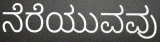
ನೆರೆಯುವವು